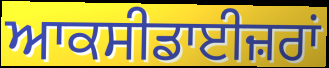
ਆਕਸੀਡਾਈਜ਼ਰਾਂ